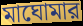
মাঘোমার